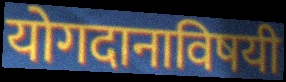
योगदानाविषयी